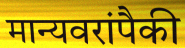
मान्यवरांपैकी